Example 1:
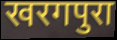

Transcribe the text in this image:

खरगपुरा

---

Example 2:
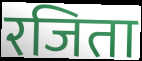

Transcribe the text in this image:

रजिता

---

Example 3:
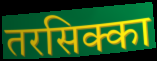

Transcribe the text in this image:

तरसिक्का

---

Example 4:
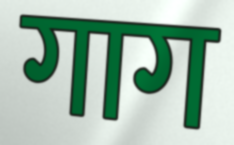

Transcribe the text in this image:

गाग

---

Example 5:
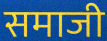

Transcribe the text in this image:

समाजी